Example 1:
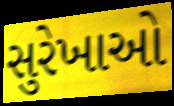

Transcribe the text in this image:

સુરેખાઓ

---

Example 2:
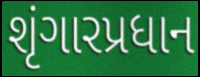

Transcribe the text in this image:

શૃંગારપ્રધાન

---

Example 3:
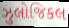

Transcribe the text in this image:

ઝુલોજિકલ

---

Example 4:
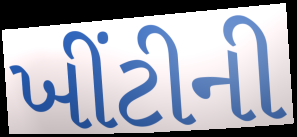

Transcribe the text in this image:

ખીંટીની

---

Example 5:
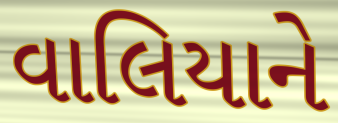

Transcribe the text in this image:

વાલિયાને